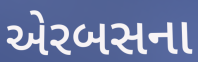
એરબસના